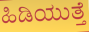
ಹಿಡಿಯುತ್ತೆ